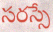
సరస్సే